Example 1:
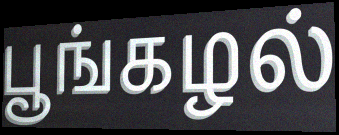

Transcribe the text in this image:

பூங்கழல்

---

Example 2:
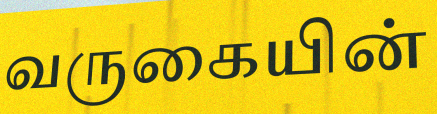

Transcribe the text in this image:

வருகையின்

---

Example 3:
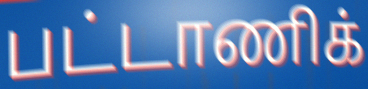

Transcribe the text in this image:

பட்டாணிக்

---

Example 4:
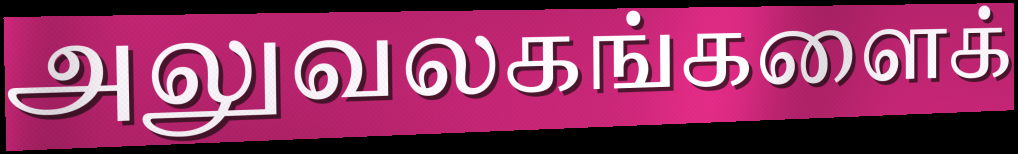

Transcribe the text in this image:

அலுவலகங்களைக்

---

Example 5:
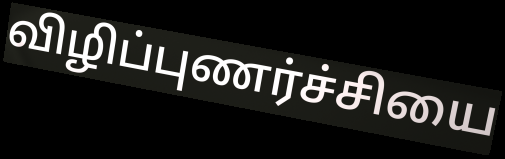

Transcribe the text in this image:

விழிப்புணர்ச்சியை